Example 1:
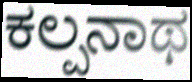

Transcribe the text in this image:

ಕಲ್ಪನಾಥ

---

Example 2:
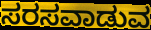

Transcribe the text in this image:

ಸರಸವಾಡುವ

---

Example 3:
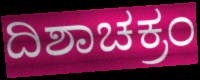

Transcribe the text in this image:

ದಿಶಾಚಕ್ರಂ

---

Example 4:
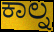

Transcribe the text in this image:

ಕಾಲ್ನ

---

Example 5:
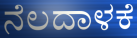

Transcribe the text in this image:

ನೆಲದಾಳಕೆ